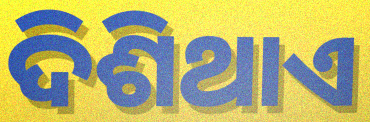
ଦିଶିଥାଏ